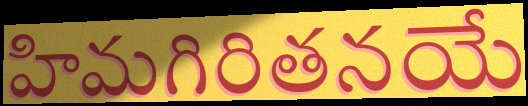
హిమగిరితనయే